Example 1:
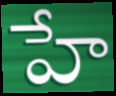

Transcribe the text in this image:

హే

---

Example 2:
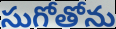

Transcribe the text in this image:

సుగోతోను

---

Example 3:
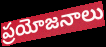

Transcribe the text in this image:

ప్రయోజనాలు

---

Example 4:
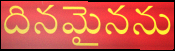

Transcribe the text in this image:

దినమైనను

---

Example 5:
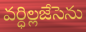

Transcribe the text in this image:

వర్ధిల్లజేసెను